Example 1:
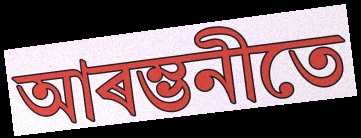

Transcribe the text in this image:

আৰম্ভনীতে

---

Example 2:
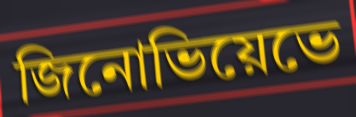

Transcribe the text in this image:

জিনোভিয়েভে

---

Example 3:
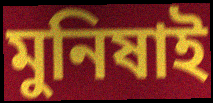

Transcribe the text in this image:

মুনিষাই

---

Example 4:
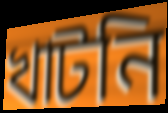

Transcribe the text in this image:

খাটনি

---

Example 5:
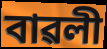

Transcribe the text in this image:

বাৱলী